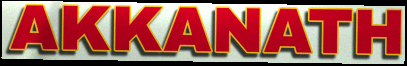
AKKANATH